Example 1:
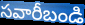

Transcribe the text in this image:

సవారీబండి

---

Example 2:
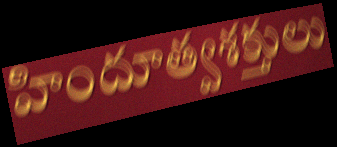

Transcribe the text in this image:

హిందూత్వశక్తులు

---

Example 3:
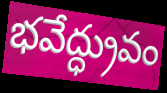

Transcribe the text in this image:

భవేద్ధ్రువం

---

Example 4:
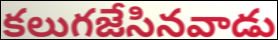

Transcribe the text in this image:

కలుగజేసినవాడు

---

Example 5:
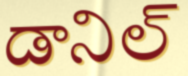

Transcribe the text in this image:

డానిల్